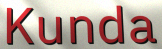
Kunda